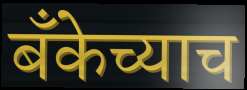
बँकेच्याच